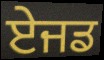
ਏਜਡ